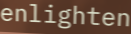
enlighten